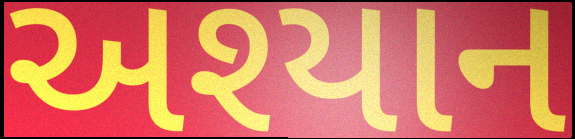
અશ્યાન